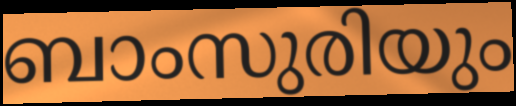
ബാംസുരിയും